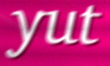
yut